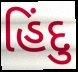
હિંદુ